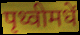
पृथ्वीमधें